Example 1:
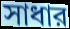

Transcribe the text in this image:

সাধার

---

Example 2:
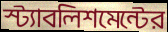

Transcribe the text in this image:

স্ট্যাবলিশমেন্টের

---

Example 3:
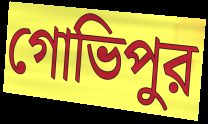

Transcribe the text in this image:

গোভিপুর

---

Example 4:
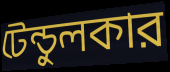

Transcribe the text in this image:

টেন্ডুলকার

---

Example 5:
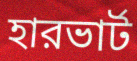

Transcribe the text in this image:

হারভার্ট